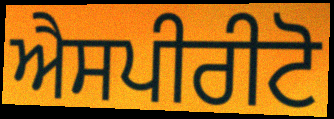
ਐਸਪੀਰੀਟੋ